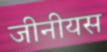
जीनीयस